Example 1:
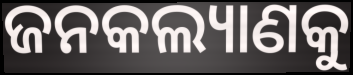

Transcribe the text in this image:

ଜନକଲ୍ୟାଣକୁ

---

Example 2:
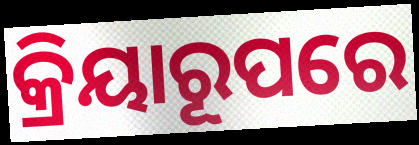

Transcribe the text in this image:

କ୍ରିୟାରୂପରେ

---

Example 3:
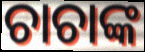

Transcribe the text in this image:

ଚାଚାଙ୍କ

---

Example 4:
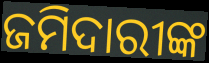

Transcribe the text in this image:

ଜମିଦାରୀଙ୍କ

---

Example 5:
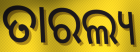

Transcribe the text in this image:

ତାରଲ୍ୟ